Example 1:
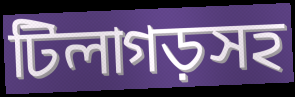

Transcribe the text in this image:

টিলাগড়সহ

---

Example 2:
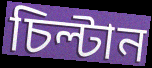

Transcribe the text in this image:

চিল্টান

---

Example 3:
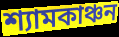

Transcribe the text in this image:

শ্যামকাঞ্চন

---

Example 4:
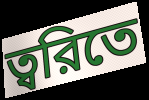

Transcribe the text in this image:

ত্বরিতে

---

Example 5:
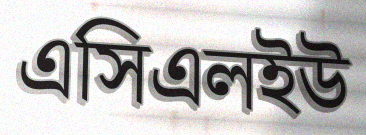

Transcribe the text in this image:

এসিএলইউ